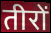
तीरों